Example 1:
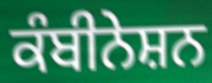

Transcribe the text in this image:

ਕੰਬੀਨੇਸ਼ਨ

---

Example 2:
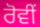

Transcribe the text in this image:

ਰੋਵੀਂ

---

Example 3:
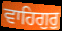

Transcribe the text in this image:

ਵਾਹਿਗੁਰੁ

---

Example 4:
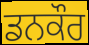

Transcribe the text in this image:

ਡਨਕੌਰ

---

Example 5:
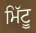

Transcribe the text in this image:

ਮਿੱਟੂ